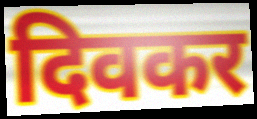
दिवकर